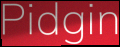
Pidgin